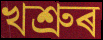
খশ্ৰুৰ